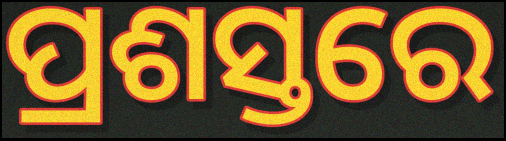
ପ୍ରଶସ୍ତରେ